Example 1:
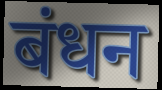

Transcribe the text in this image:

बंधन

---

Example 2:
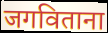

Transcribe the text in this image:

जगविताना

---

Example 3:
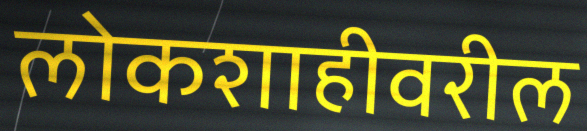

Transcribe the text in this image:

लोकशाहीवरील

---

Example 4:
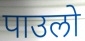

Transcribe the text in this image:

पाउलो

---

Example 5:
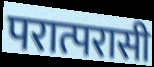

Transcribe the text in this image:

परात्परासी